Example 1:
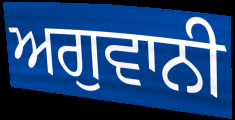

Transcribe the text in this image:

ਅਗੁਵਾਨੀ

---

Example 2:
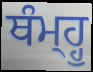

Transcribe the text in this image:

ਥੰਮ੍ਹ੍ਹੁ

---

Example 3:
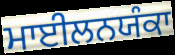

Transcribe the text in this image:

ਮਾਈਲਨਯੰਕਾ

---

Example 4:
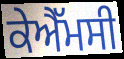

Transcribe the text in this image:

ਕੇਐੱਮਸੀ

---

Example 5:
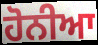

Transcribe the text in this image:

ਹੋਨੀਆ